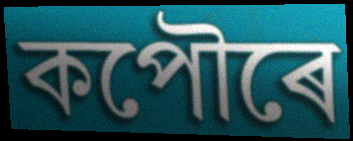
কপৌৰে